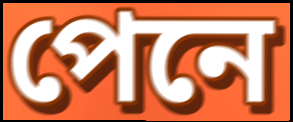
পেনে